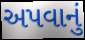
અપવાનું